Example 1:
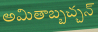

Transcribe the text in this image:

అమితాబ్బచ్చన్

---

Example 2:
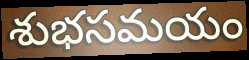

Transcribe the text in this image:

శుభసమయం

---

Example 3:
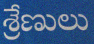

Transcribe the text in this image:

శ్రేణులు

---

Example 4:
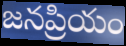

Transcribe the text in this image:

జనప్రియం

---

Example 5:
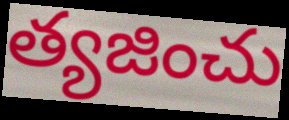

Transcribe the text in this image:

త్యజించు